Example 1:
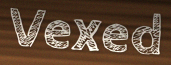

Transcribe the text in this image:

Vexed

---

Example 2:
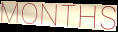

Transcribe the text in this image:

MONTHS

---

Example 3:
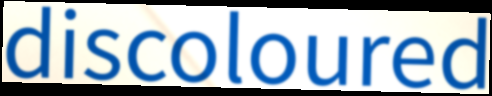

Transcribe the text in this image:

discoloured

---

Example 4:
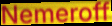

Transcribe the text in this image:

Nemeroff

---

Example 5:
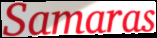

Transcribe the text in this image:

Samaras